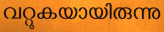
വറ്റുകയായിരുന്നു